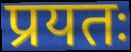
प्रयतः